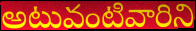
అటువంటివారిని